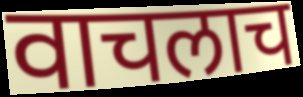
वाचलाच